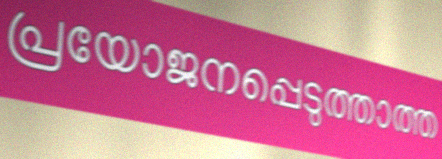
പ്രയോജനപ്പെടുത്താത്ത